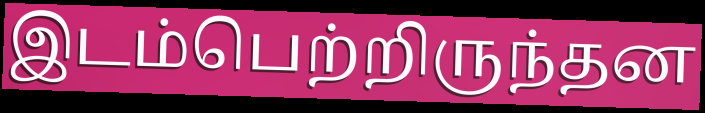
இடம்பெற்றிருந்தன